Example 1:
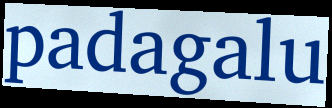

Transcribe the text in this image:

padagalu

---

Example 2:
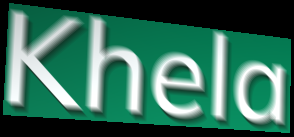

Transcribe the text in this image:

Khela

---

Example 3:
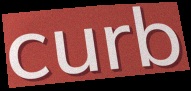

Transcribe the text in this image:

curb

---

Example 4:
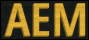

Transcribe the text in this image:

AEM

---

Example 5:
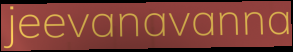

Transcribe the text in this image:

jeevanavanna